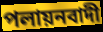
পলায়নবাদী